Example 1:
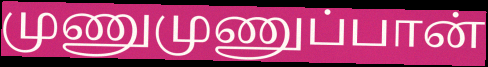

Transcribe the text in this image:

முணுமுணுப்பான்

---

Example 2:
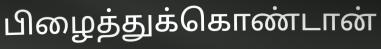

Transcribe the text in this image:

பிழைத்துக்கொண்டான்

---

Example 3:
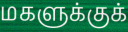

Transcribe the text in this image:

மகளுக்குக்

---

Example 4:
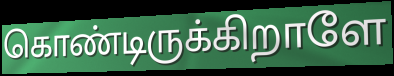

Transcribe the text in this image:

கொண்டிருக்கிறாளே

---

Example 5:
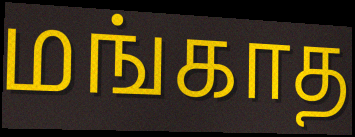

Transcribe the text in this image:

மங்காத